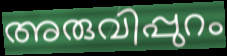
അരുവിപ്പുറം